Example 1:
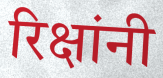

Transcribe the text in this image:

रिक्षांनी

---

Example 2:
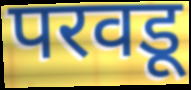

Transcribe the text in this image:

परवडू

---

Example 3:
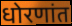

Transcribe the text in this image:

धोरणांत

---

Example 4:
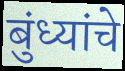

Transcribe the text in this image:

बुंध्यांचे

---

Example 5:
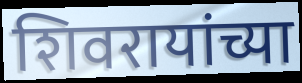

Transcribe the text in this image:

शिवरायांच्या